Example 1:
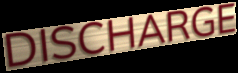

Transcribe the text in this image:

DISCHARGE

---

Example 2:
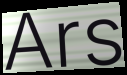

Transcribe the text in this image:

Ars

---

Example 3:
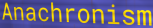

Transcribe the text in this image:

Anachronism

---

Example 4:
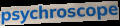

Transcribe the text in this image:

psychroscope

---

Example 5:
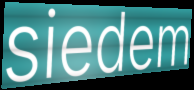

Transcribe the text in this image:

siedem